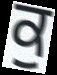
ਕੁ